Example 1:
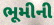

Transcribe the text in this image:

ભૂમીની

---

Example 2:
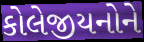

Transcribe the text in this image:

કોલેજીયનોને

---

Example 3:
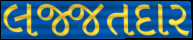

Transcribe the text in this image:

લજ્જતદાર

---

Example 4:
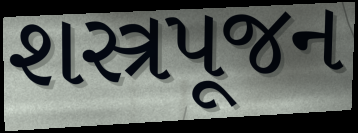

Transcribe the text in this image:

શસ્ત્રપૂજન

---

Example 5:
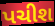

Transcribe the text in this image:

પચીશ